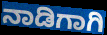
ನಾಡಿಗಾಗಿ